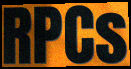
RPCs